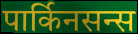
पार्किनसन्स